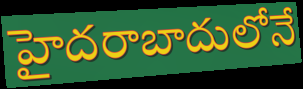
హైదరాబాదులోనే